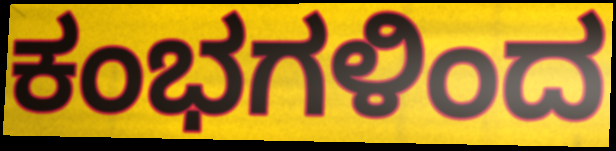
ಕಂಭಗಳಿಂದ